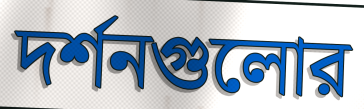
দর্শনগুলোর